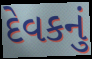
દેવકનું